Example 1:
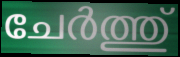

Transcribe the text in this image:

ചേർത്തു്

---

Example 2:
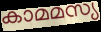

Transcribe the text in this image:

കാമമസ്യ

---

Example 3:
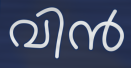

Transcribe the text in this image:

വിൻ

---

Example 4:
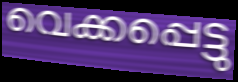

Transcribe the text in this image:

വെക്കപ്പെട്ടു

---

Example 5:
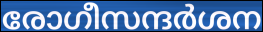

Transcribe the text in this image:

രോഗീസന്ദർശന